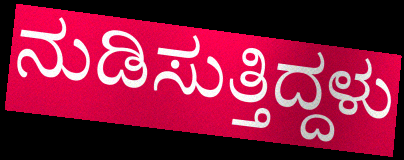
ನುಡಿಸುತ್ತಿದ್ದಳು